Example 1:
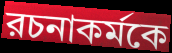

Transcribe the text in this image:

রচনাকর্মকে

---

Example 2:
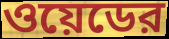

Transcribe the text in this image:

ওয়েডের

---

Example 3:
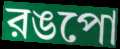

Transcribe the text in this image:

রঙপো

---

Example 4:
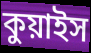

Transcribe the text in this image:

কুয়াইস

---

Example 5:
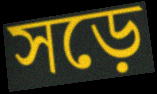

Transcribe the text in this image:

সড়ে